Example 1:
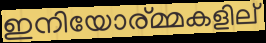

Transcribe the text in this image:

ഇനിയോര്മ്മകളില്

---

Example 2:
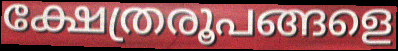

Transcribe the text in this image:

ക്ഷേത്രരൂപങ്ങളെ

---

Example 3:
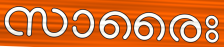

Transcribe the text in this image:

സാരൈഃ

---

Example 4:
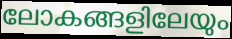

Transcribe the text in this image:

ലോകങ്ങളിലേയും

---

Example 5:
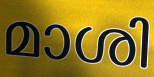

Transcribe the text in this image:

മാശി